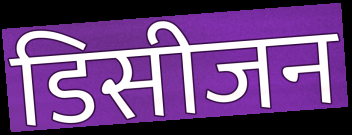
डिसीजन